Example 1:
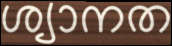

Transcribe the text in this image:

ശ്യാനത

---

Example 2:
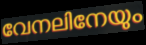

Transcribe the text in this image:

വേനലിനേയും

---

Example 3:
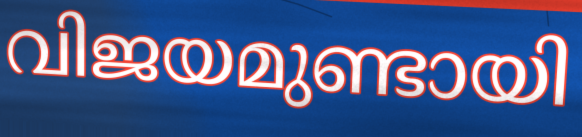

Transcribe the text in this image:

വിജയമുണ്ടായി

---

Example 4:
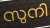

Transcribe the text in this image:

സുനി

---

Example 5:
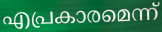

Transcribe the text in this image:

എപ്രകാരമെന്ന്